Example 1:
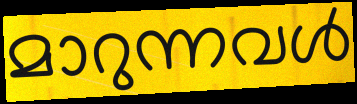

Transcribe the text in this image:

മാറുന്നവൾ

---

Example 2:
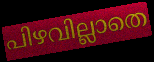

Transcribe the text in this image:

പിഴവില്ലാതെ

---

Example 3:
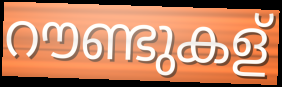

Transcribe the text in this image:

റൗണ്ടുകള്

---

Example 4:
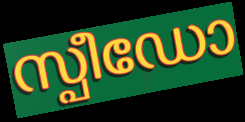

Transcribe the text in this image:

സ്പീഡോ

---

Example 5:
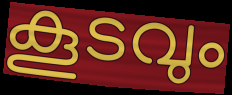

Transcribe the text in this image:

കൂടവും